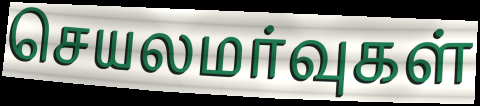
செயலமர்வுகள்